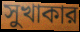
সুখাকার